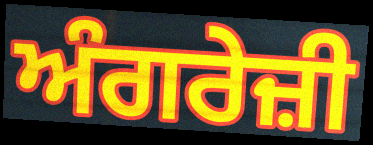
ਅੰਗਰੇਜ਼ੀ